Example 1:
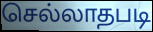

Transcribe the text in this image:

செல்லாதபடி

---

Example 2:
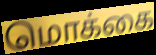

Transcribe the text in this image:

மொக்கை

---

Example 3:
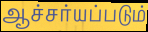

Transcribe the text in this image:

ஆச்சர்யப்படும்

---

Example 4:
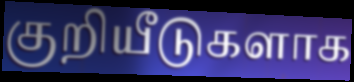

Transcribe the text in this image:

குறியீடுகளாக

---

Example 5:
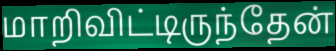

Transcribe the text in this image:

மாறிவிட்டிருந்தேன்